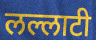
लल्लाटी